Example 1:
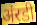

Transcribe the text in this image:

अंरडी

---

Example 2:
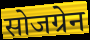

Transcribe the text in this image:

सोजग्रेन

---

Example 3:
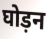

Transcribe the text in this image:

घोड़न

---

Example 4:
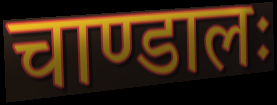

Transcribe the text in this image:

चाण्डालः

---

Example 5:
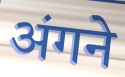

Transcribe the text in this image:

अंगने